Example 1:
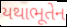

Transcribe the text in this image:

યથાભૂતેન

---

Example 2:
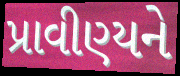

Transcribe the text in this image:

પ્રાવીણ્યને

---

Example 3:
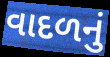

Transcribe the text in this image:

વાદળનું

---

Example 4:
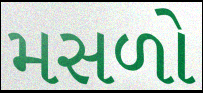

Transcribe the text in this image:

મસળો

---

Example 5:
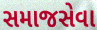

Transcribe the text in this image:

સમાજસેવા